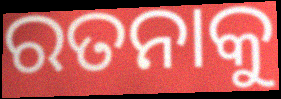
ରତନାକୁ